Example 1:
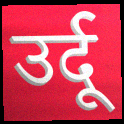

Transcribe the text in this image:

उर्दू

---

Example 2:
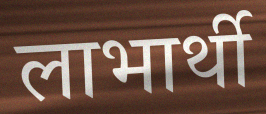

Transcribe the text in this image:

लाभार्थी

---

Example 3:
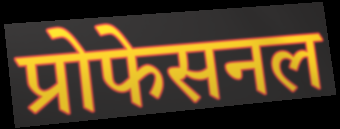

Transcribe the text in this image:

प्रोफेसनल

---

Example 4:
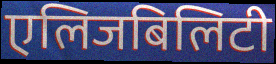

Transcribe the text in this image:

एलिजबिलिटी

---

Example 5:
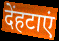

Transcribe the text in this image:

देंहटाएं